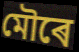
মৌৰে